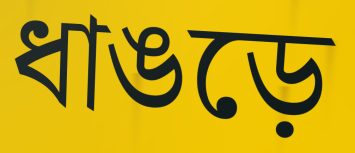
ধাঙড়ে